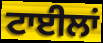
ਟਾਈਲਾਂ